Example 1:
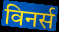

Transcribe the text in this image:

विनर्स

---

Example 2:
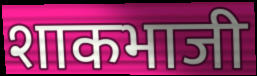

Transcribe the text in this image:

शाकभाजी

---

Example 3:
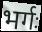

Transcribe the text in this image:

भर्गः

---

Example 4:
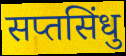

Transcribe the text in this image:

सप्तसिंधु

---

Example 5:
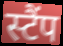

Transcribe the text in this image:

स्टैंप